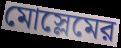
মোস্লেমের